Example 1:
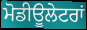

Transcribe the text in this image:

ਮੋਡੀਊਲੇਟਰਾਂ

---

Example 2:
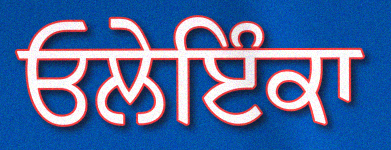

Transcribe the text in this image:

ਓਲੇਇੰਕਾ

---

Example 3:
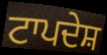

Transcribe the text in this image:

ਟਾਪਦੇਸ਼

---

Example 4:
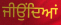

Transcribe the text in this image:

ਜੀਉਂਦਿਆਂ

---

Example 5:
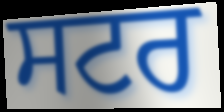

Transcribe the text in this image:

ਸਟਰ